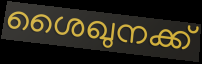
ശൈഖുനക്ക്